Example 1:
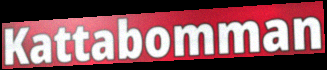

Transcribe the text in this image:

Kattabomman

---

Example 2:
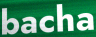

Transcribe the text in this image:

bacha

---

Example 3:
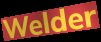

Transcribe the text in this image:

Welder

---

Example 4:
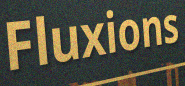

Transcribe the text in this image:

Fluxions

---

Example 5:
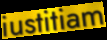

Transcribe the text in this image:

iustitiam